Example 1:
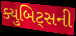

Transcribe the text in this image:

ક્યુબિટ્સની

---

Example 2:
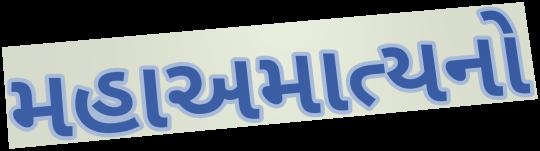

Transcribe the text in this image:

મહાઅમાત્યનો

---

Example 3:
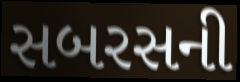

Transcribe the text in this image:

સબરસની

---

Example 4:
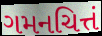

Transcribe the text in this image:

ગમનચિત્તં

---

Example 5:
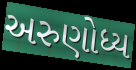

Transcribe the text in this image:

અરુણોધ્ય